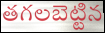
తగలబెట్టిన